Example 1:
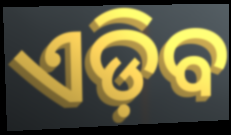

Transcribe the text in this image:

ଏଡ଼ିବ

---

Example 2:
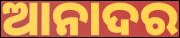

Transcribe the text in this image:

ଆନାଦର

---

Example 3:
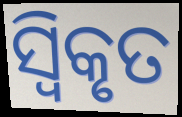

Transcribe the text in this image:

ସ୍ଵିକୃତ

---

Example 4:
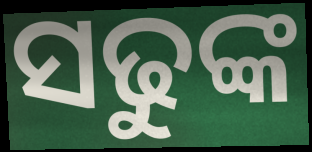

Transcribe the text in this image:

ସଢୁଙ୍କ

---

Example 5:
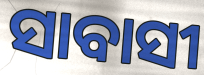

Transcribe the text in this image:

ସାବାସୀ